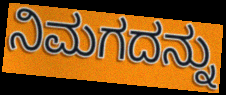
ನಿಮಗದನ್ನು